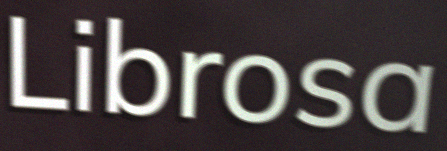
Librosa